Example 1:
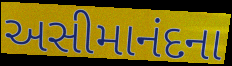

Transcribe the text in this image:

અસીમાનંદના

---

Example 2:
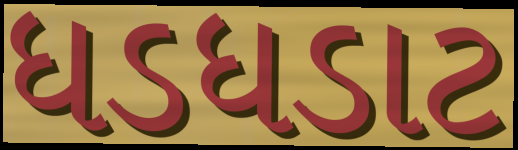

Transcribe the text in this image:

ધડધડાટ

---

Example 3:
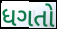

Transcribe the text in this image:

ધગતો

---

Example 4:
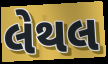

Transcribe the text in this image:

લેથલ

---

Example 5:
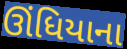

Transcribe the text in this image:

ઊંધિયાના